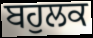
ਬਹੁਲਕ